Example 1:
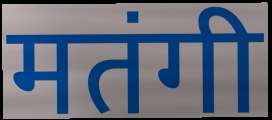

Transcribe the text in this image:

मतंगी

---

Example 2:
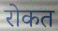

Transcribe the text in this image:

रोकत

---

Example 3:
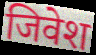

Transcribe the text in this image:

जिवेश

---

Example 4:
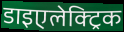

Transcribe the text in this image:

डाइएलेक्ट्रिक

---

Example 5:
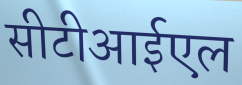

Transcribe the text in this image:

सीटीआईएल